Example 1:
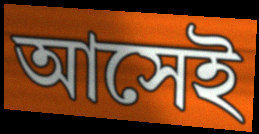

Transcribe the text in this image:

আসেই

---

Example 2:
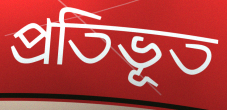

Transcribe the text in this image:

প্রতিভূত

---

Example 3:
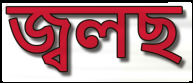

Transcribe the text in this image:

জ্বলছ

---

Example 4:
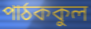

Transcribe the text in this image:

পাঠককুল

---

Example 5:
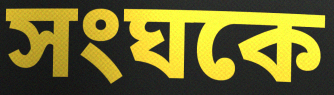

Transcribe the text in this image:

সংঘকে